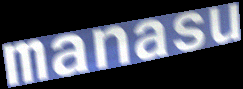
manasu